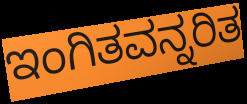
ಇಂಗಿತವನ್ನರಿತ